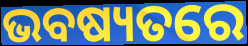
ଭବଷ୍ୟତରେ